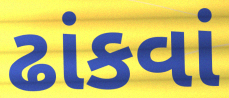
ઢાંકવાં